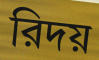
রিদয়